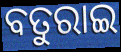
ବତୁରାଇ